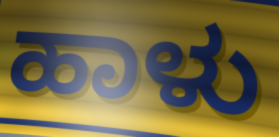
ಹಾಳು